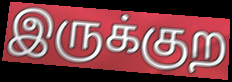
இருக்குற